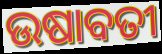
ଉଷାବତୀ